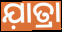
ଯ଼ାତ୍ରା